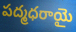
పద్మధరాయై